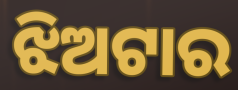
ଝିଅଟାର